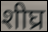
शीघ्र